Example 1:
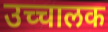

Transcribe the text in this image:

उच्चालक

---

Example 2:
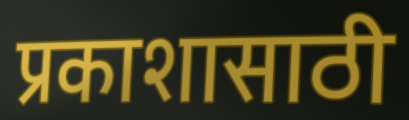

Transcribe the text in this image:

प्रकाशासाठी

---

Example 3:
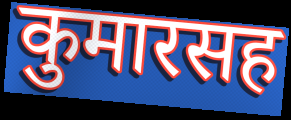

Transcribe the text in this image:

कुमारसह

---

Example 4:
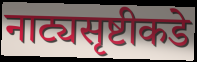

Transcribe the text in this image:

नाट्यसृष्टीकडे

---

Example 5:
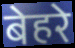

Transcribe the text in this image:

बेहरे